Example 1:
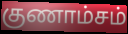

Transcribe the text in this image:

குணாம்சம்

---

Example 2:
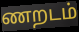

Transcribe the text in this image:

ணறடம்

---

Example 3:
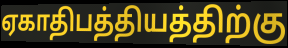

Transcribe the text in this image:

ஏகாதிபத்தியத்திற்கு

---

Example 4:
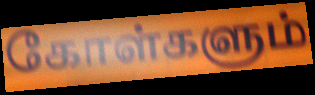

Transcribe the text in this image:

கோள்களும்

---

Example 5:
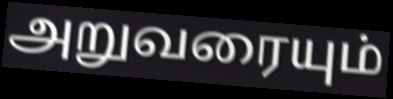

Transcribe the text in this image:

அறுவரையும்